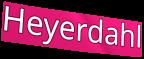
Heyerdahl